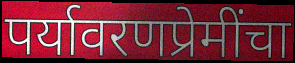
पर्यावरणप्रेमींचा